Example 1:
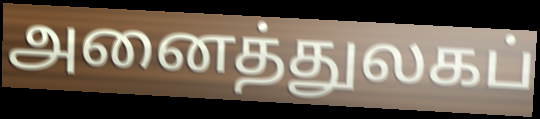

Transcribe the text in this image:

அனைத்துலகப்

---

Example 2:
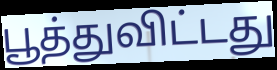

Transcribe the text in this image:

பூத்துவிட்டது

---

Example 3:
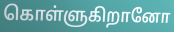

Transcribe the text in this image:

கொள்ளுகிறானோ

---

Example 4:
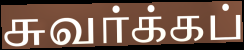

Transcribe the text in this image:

சுவர்க்கப்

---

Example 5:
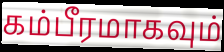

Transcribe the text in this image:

கம்பீரமாகவும்